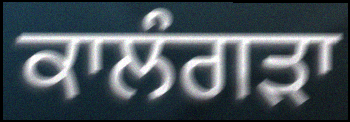
ਕਾਲੰਗੜਾ